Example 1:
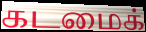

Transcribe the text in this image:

கடமைக்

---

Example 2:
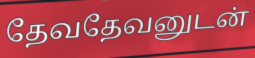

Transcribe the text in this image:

தேவதேவனுடன்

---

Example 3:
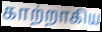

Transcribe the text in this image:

காற்றாகிய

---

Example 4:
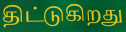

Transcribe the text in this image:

திட்டுகிறது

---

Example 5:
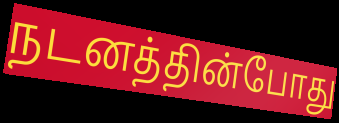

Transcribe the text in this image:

நடனத்தின்போது